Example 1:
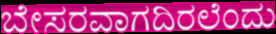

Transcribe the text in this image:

ಬೇಸರವಾಗದಿರಲೆಂದು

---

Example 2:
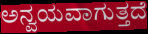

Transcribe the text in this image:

ಅನ್ವಯವಾಗುತ್ತದೆ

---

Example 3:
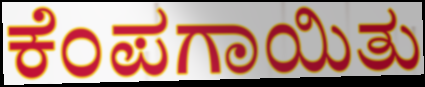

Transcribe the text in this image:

ಕೆಂಪಗಾಯಿತು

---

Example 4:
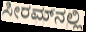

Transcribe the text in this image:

ಸೀರಮ್‌ನಲ್ಲಿ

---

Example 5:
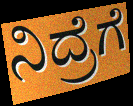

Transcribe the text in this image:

ನಿದ್ರೆಗೆ